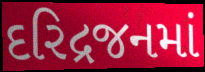
દરિદ્રજનમાં